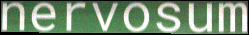
nervosum